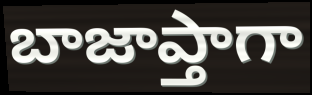
బాజాప్తాగా